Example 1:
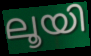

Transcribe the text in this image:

ലൂയി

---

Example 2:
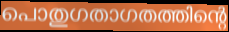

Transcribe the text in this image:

പൊതുഗതാഗതത്തിന്റെ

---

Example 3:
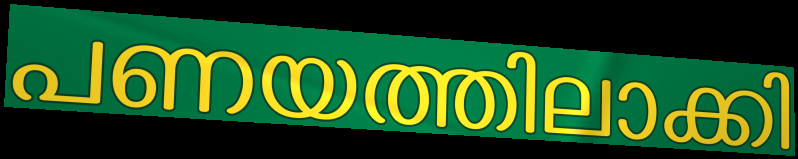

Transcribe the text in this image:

പണയത്തിലാക്കി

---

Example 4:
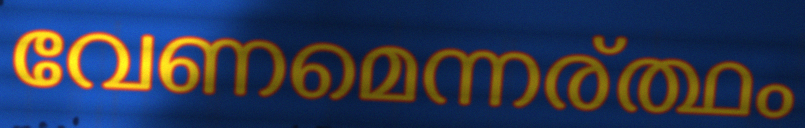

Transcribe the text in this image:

വേണമെന്നര്ത്ഥം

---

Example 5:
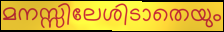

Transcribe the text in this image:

മനസ്സിലേശിടാതെയും